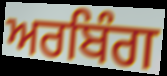
ਅਰਬਿੰਗ